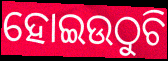
ହୋଇଉଠୁଚି